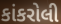
કાંકરોલી